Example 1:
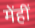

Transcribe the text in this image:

मेंहीं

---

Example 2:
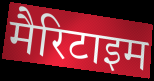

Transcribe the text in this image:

मैरिटाइम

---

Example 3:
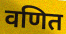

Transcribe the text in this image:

वणित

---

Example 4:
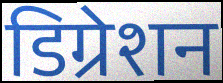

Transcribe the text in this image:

डिग्रेशन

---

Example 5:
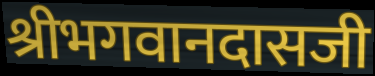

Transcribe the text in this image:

श्रीभगवानदासजी